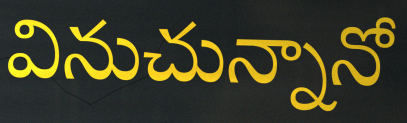
వినుచున్నానో